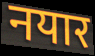
नयार